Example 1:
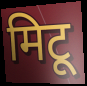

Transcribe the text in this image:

मिटू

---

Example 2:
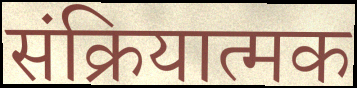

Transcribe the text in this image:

संक्रियात्मक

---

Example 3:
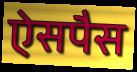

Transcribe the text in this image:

ऐसपैस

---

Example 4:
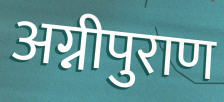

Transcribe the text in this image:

अग्नीपुराण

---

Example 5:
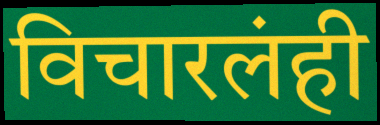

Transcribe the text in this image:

विचारलंही